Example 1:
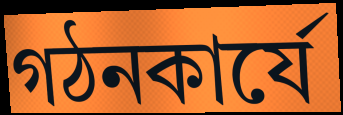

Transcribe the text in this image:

গঠনকার্যে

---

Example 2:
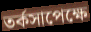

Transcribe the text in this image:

তর্কসাপেক্ষে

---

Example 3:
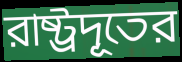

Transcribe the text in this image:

রাষ্ট্রদূতের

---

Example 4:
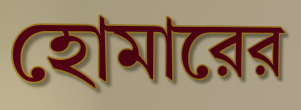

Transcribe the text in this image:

হোমারের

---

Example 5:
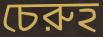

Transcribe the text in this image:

চেরুহ